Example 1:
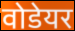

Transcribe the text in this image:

वोडेयर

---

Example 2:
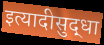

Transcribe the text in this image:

इत्यादीसुद्धा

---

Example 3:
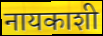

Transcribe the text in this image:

नायकाशी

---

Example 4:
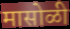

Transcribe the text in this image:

मासोळी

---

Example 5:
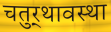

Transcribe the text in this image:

चतुर्थावस्था